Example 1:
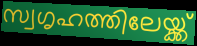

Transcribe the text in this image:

സ്വഗൃഹത്തിലേയ്ക്ക്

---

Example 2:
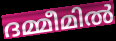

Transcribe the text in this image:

ദമ്മീമിൽ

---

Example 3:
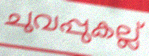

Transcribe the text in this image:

ചുവപ്പുകല്ല്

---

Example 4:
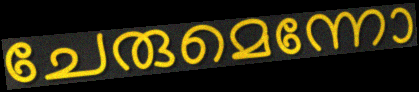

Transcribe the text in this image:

ചേരുമെന്നോ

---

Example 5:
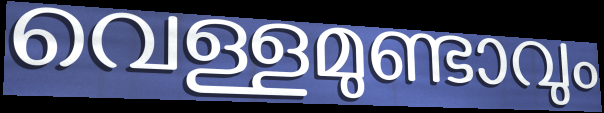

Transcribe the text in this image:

വെള്ളമുണ്ടാവും